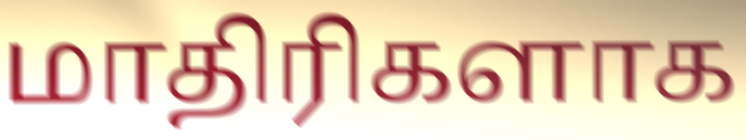
மாதிரிகளாக